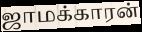
ஜாமக்காரன்